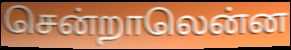
சென்றாலென்ன